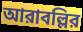
আরাবল্লির